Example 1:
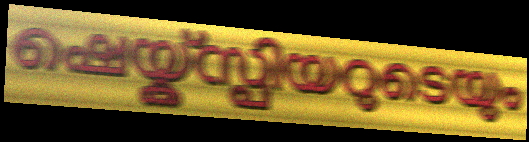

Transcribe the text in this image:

ഷെയ്ക്സ്പിയറുടെയും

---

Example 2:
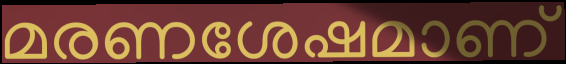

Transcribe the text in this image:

മരണശേഷമാണ്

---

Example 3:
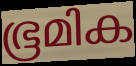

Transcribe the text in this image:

ഭൂമിക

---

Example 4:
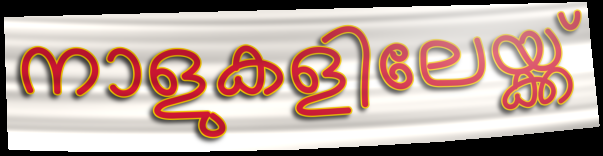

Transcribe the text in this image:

നാളുകളിലേയ്ക്ക്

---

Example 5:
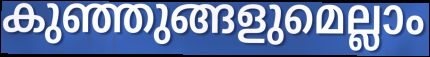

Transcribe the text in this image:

കുഞ്ഞുങ്ങളുമെല്ലാം